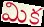
మిక